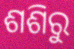
ଶଶିରୁ